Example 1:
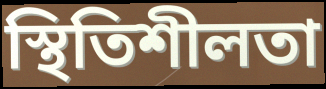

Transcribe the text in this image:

স্থিতিশীলতা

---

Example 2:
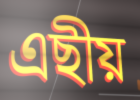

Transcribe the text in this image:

এছীয়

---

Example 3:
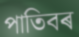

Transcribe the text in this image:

পাতিবৰ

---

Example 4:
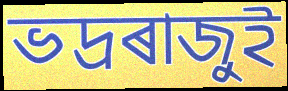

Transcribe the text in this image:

ভদ্ৰৰাজুই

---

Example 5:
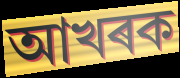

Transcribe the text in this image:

আখৰক